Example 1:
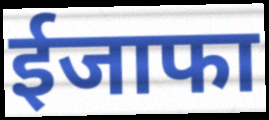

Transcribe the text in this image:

ईजाफा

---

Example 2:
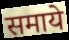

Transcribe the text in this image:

समाये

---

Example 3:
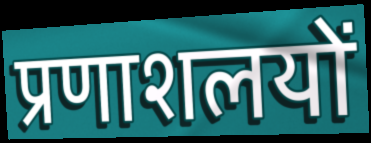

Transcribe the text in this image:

प्रणाशलयों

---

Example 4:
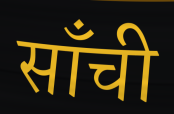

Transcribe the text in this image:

साँची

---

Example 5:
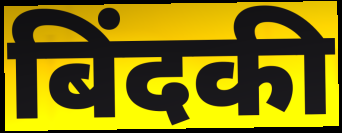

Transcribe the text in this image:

बिंदकी